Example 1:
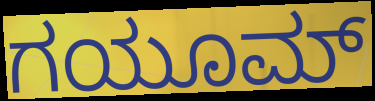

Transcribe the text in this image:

ಗಯೂಮ್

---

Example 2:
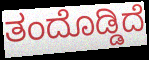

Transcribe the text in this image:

ತಂದೊಡ್ಡಿದೆ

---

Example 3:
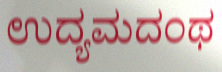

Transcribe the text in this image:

ಉದ್ಯಮದಂಥ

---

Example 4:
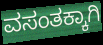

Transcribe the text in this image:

ವಸಂತಕ್ಕಾಗಿ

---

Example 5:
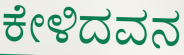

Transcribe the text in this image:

ಕೇಳಿದವನ